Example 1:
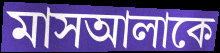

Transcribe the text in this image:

মাসআলাকে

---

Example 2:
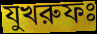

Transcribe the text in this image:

যুখরুফঃ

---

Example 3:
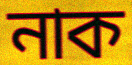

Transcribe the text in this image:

নাক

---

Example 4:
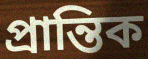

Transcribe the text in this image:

প্রান্তিক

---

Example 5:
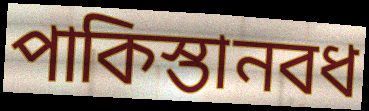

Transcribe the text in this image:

পাকিস্তানবধ